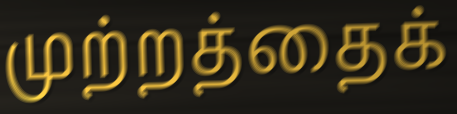
முற்றத்தைக்